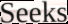
Seeks